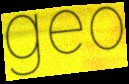
geo